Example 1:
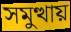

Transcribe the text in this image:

সমুত্থায়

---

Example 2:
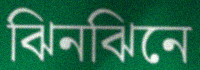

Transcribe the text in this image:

ঝিনঝিনে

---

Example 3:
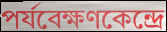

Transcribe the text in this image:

পর্যবেক্ষণকেন্দ্রে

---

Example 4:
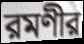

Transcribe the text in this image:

রমণীর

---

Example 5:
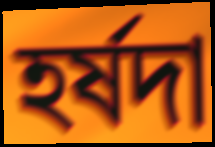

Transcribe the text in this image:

হর্ষদা